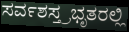
ಸರ್ವಶಸ್ತ್ರಭೃತರಲ್ಲಿ